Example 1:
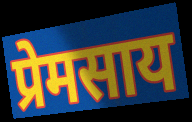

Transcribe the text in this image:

प्रेमसाय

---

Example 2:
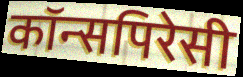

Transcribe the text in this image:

कॉन्सपिरेसी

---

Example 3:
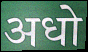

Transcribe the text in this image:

अधो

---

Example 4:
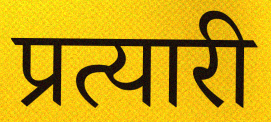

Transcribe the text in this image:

प्रत्यारी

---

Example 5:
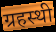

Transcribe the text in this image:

ग्रहस्थी